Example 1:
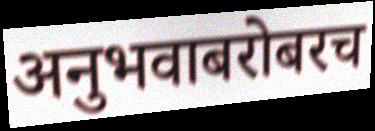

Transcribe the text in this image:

अनुभवाबरोबरच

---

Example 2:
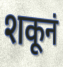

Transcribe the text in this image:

शकूनं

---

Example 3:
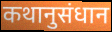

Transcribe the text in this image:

कथानुसंधान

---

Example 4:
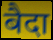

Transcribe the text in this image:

बैदा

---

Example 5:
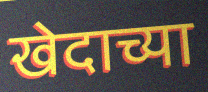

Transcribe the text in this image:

खेदाच्या